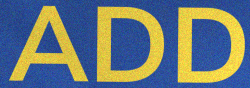
ADD